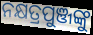
ନକ୍ଷତ୍ରପୁଞ୍ଜଙ୍କୁ